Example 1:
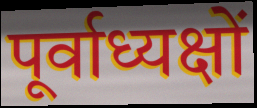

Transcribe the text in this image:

पूर्वाध्यक्षों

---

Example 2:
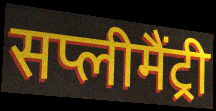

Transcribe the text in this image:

सप्लीमैंट्री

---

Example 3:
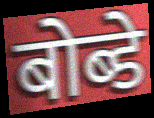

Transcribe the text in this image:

बोब्डे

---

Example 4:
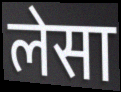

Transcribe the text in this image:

लेसा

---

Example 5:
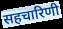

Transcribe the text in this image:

सहचारिणी